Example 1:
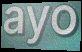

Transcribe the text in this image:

ayo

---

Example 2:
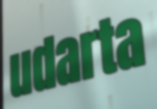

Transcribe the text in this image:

udarta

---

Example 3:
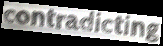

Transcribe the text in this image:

contradicting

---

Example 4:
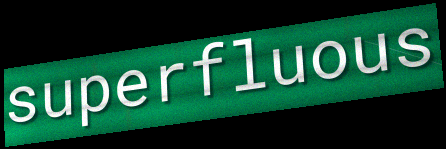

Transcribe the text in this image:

superfluous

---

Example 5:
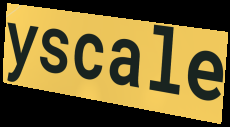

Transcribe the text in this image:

yscale